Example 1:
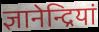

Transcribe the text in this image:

ज्ञानेन्द्रियां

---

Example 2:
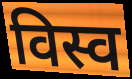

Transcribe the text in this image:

विस्व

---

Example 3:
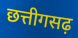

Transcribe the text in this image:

छत्तीगसढ़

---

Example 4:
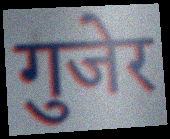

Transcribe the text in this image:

गुजेर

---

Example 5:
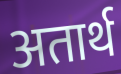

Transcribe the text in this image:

अतार्थ